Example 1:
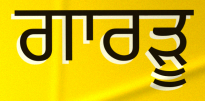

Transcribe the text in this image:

ਗਾਰੜੂ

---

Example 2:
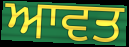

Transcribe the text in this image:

ਆਵਤ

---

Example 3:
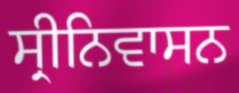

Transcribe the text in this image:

ਸ੍ਰੀਨਿਵਾਸਨ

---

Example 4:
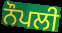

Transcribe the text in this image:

ਨੌਪਲੀ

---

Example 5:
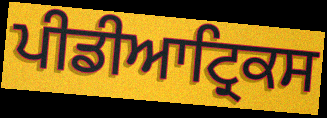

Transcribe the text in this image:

ਪੀਡੀਆਟ੍ਰਿਕਸ